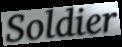
Soldier